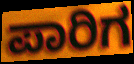
ಪಾರಿಗ